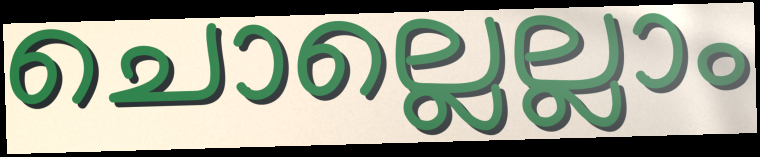
ചൊല്ലെല്ലാം